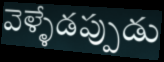
వెళ్ళేడప్పుడు